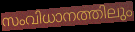
സംവിധാനത്തിലും